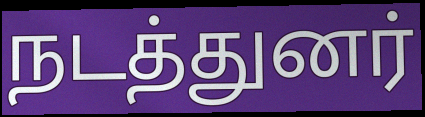
நடத்துனர்